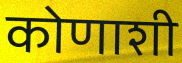
कोणाशी